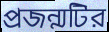
প্রজন্মটির